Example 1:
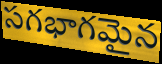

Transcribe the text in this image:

సగభాగమైన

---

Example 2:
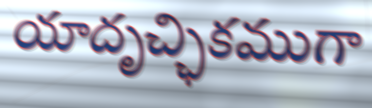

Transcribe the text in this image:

యాదృచ్ఛికముగా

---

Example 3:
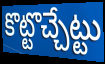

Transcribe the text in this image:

కొట్టొచ్చేట్టు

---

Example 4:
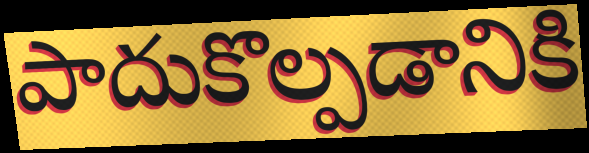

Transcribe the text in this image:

పాదుకొల్పడానికి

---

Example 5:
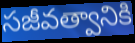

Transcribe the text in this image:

సజీవత్వానికి